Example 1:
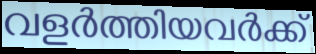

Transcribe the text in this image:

വളർത്തിയവർക്ക്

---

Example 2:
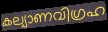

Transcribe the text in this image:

കല്യാണവിഗ്രഹ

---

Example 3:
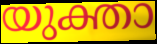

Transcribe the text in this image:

യുക്താ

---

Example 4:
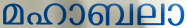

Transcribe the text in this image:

മഹാബലാ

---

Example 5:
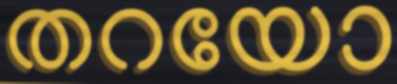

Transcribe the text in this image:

തറയോ